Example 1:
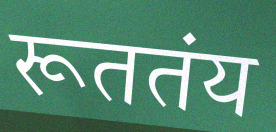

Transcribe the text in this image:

रूततंय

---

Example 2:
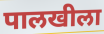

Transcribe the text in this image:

पालखीला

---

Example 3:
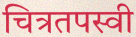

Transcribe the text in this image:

चित्रतपस्वी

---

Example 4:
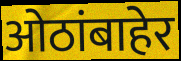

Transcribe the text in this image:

ओठांबाहेर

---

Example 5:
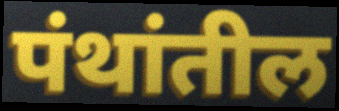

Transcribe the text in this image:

पंथांतील